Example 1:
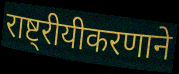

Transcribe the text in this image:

राष्ट्रीयीकरणाने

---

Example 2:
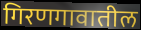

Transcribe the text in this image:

गिरणगावातील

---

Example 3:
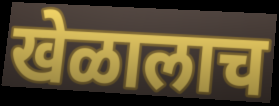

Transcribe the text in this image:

खेळालाच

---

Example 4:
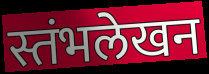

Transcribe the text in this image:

स्तंभलेखन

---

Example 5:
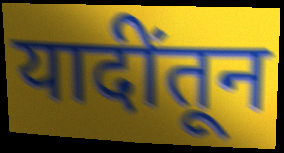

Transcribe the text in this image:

यादींतून